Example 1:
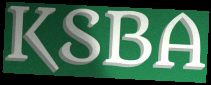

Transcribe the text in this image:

KSBA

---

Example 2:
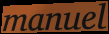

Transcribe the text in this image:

manuel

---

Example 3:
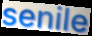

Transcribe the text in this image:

senile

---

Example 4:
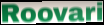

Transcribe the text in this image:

Roovari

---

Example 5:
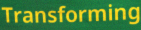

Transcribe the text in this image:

Transforming